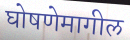
घोषणेमागील